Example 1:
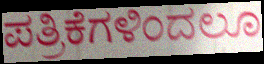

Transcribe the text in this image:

ಪತ್ರಿಕೆಗಳಿಂದಲೂ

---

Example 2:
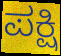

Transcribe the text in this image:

ಪಕ್ಷಿ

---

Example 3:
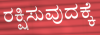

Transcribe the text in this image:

ರಕ್ಷಿಸುವುದಕ್ಕೆ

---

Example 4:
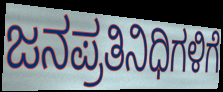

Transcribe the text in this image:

ಜನಪ್ರತಿನಿಧಿಗಳಿಗೆ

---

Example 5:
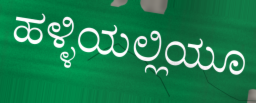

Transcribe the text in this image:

ಹಳ್ಳಿಯಲ್ಲಿಯೂ